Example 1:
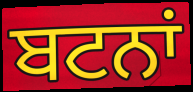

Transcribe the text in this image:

ਬਟਨਾਂ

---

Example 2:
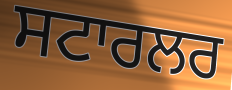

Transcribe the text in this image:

ਸਟਾਰਲਰ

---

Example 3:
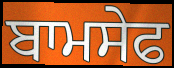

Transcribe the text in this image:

ਬਾਮਸੇਫ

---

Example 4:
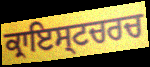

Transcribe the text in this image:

ਕ੍ਰਾਇਸ੍ਟਚਰਚ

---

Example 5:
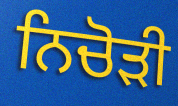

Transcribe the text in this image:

ਨਿਚੋੜੀ